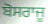
ਬੋਸਰਾਜੂ